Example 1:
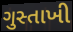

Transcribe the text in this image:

ગુસ્તાખી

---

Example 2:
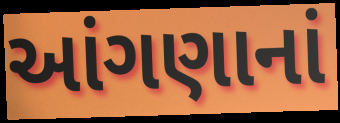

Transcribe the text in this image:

આંગણાનાં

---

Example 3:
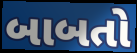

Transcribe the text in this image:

બાબતો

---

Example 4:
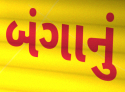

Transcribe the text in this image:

બંગાનું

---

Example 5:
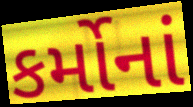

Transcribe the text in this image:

કર્મોનાં